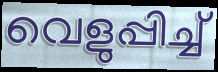
വെളുപ്പിച്ച്